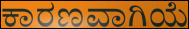
ಕಾರಣವಾಗಿಯೆ